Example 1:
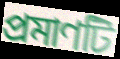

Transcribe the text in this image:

প্ৰমাণটি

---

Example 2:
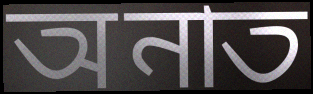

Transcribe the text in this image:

অনাত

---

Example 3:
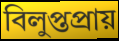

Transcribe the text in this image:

বিলুপ্তপ্ৰায়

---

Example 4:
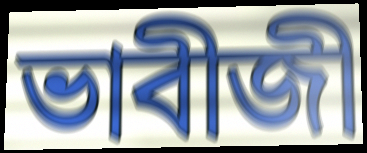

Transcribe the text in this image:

ভাবীজী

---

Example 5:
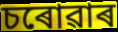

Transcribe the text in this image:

চৰোৱাৰ